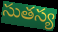
సుతస్య